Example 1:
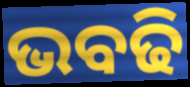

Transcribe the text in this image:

ଭବଢି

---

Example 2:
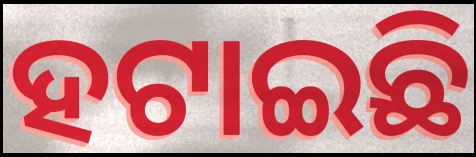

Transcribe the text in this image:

ହଟାଇଛି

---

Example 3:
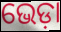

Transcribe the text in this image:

ଭେଡ଼ା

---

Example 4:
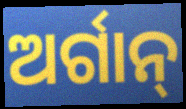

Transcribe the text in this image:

ଅର୍ଗାନ୍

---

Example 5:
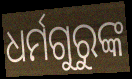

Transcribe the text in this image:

ଧର୍ମଗୁରୁଙ୍କ